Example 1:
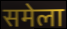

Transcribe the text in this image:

समेला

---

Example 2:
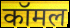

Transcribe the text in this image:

कॉमल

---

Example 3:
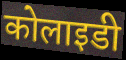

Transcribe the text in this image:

कोलाइडी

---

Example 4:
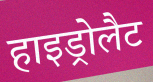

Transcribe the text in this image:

हाइड्रोलैट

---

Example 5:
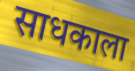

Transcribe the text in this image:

साधकाला